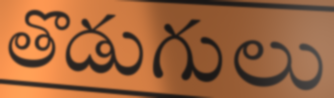
తొడుగులు